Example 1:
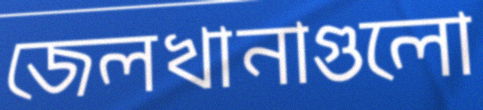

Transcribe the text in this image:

জেলখানাগুলো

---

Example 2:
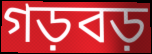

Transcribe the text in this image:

গড়বড়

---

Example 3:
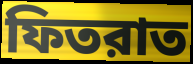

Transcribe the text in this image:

ফিতরাত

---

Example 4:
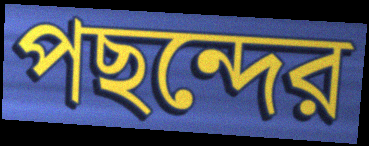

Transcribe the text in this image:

পছন্দের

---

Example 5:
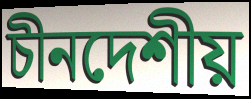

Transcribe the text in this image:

চীনদেশীয়